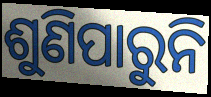
ଶୁଣିପାରୁନି